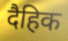
दैहिक